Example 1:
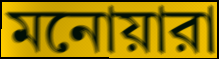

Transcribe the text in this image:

মনোয়ারা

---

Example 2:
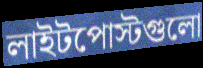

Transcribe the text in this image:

লাইটপোস্টগুলো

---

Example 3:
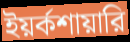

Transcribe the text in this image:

ইয়র্কশায়ারি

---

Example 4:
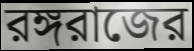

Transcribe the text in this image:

রঙ্গরাজের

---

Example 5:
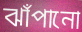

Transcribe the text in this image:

ঝাঁপানো